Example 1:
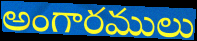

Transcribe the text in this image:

అంగారములు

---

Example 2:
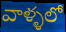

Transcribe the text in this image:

వాళ్ళలో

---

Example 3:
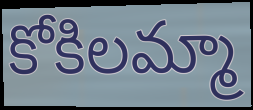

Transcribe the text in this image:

కోకిలమ్మా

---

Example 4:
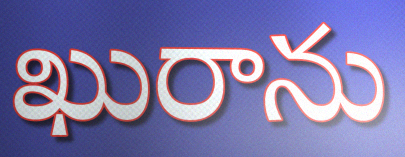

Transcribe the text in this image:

ఖురాను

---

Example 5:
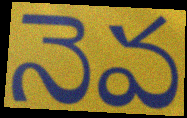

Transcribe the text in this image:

నెవ